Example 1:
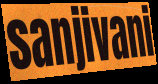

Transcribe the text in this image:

sanjivani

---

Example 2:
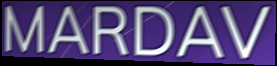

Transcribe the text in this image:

MARDAV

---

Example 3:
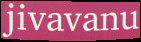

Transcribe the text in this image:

jivavanu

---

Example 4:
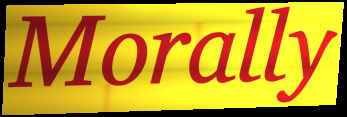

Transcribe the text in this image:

Morally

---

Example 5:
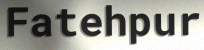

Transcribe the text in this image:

Fatehpur